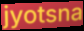
jyotsna